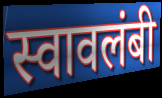
स्वावलंबी